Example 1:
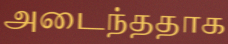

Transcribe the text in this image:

அடைந்ததாக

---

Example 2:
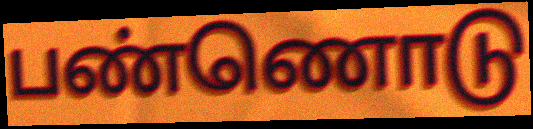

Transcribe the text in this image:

பண்ணொடு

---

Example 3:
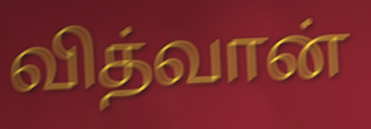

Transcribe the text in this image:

வித்வான்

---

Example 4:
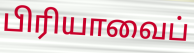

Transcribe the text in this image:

பிரியாவைப்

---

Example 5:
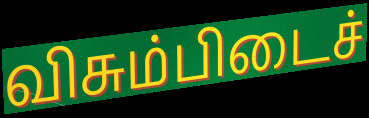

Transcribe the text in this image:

விசும்பிடைச்